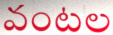
వంటల